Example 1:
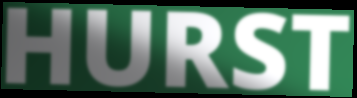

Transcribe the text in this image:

HURST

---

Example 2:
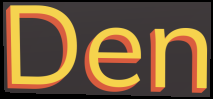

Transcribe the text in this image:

Den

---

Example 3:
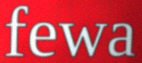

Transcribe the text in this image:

fewa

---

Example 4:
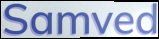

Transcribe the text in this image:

Samved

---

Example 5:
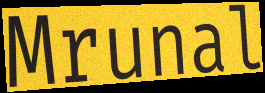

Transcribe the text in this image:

Mrunal